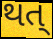
થત્